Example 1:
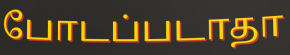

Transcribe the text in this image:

போடப்படாதா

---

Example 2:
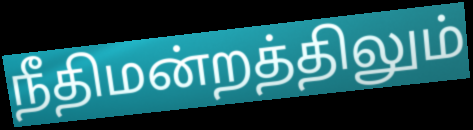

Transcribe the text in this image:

நீதிமன்றத்திலும்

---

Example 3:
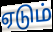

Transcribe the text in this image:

ஏடும்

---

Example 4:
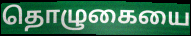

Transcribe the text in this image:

தொழுகையை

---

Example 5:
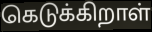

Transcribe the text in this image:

கெடுக்கிறாள்